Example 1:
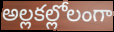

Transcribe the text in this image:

అల్లకల్లోలంగా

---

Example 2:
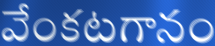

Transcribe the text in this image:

వేంకటగానం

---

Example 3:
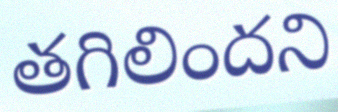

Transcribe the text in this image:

తగిలిందని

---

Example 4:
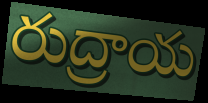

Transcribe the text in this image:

రుద్రాయ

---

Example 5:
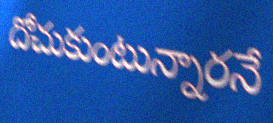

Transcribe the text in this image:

దోచుకుంటున్నారనే